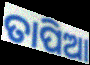
ତାପିଆ